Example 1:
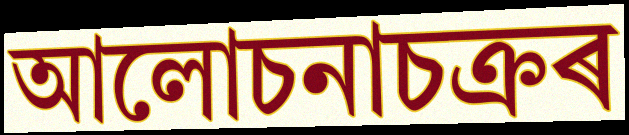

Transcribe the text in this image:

আলোচনাচক্ৰৰ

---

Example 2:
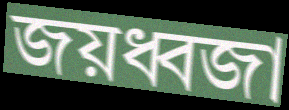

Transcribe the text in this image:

জয়ধ্বজা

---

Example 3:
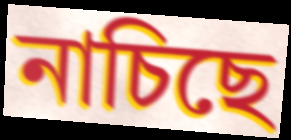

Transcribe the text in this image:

নাচিছে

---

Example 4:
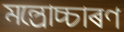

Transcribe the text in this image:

মন্ত্ৰোচ্চাৰণ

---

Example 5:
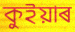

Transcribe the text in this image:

কুইয়াৰ